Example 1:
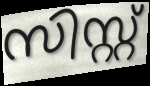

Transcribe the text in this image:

സിസ്റ്റ്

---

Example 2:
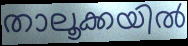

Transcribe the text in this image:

താലൂക്കയിൽ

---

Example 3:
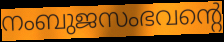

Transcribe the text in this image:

നംബുജസംഭവന്റെ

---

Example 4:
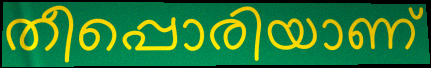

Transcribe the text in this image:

തീപ്പൊരിയാണ്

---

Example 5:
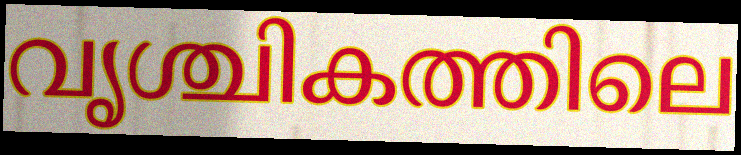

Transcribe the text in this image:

വൃശ്ചികത്തിലെ